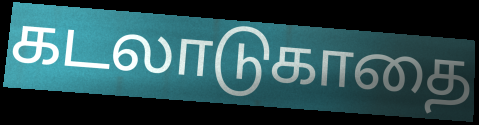
கடலாடுகாதை